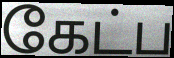
கேட்ப